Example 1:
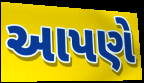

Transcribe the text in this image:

આપણે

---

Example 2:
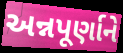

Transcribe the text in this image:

અન્નપૂર્ણાને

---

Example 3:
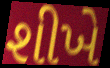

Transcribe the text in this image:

શીખે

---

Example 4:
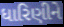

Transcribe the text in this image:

ધારિણીને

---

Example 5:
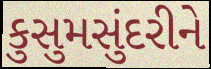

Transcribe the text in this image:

કુસુમસુંદરીને